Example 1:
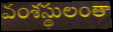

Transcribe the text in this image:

వంశస్థులంతా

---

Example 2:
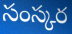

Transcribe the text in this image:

సంస్కర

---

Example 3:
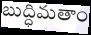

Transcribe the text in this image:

బుద్ధిమతాం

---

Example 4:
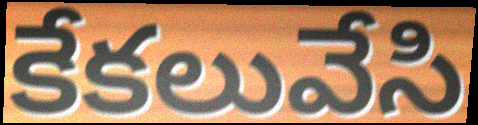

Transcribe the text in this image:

కేకలువేసి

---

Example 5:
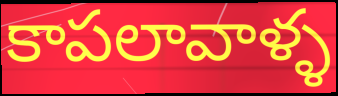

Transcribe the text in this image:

కాపలావాళ్ళ